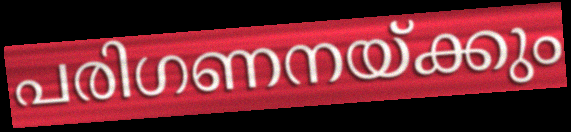
പരിഗണനയ്ക്കും